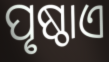
ପୃଷ୍ଠାଏ